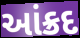
આંક્રદ